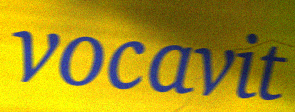
vocavit